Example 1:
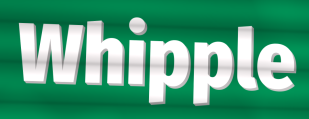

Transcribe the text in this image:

Whipple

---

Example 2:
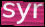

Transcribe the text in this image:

syr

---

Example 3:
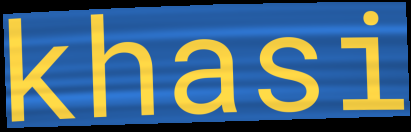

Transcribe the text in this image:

khasi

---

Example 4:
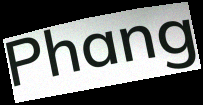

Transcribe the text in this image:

Phang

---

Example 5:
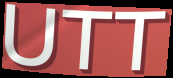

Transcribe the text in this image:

UTT